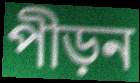
পীড়ন